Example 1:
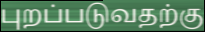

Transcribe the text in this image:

புறப்படுவதற்கு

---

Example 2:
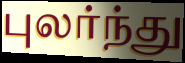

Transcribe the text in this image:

புலர்ந்து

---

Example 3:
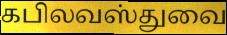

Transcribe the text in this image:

கபிலவஸ்துவை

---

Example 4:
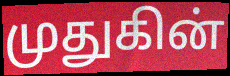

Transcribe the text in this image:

முதுகின்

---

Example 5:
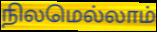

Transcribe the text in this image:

நிலமெல்லாம்